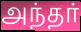
அந்தர்